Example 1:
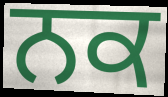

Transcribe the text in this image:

ਨਕ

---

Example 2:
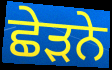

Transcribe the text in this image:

ਛੇੜਨੇ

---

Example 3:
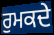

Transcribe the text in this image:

ਰੁਮਕਦੇ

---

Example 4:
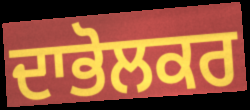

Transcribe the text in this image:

ਦਾਭੋਲਕਰ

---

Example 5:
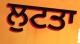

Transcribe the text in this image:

ਲੁਟਤਾ